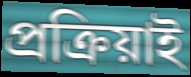
প্ৰক্ৰিয়াই